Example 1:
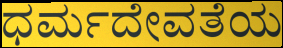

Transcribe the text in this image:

ಧರ್ಮದೇವತೆಯ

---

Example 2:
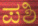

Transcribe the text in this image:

ಪಶಿ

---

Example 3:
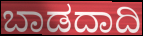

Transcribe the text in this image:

ಬಾಡದಾದಿ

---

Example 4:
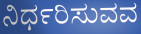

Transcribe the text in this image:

ನಿರ್ಧರಿಸುವವ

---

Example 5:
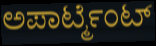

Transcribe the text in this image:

ಅಪಾರ್ಟ್ಮೆಂಟ್